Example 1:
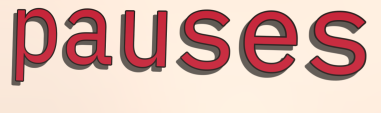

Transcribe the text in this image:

pauses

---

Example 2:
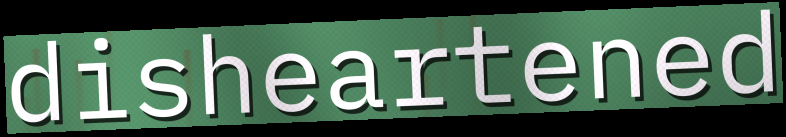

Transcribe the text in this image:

disheartened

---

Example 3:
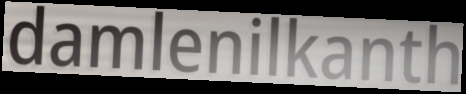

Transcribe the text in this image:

damlenilkanth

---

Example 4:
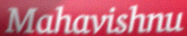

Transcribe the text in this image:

Mahavishnu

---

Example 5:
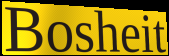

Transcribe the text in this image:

Bosheit